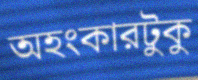
অহংকারটুকু